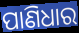
ପାଣିଧାର